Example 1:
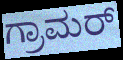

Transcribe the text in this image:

ಗ್ರಾಮರ್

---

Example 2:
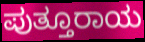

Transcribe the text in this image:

ಪುತ್ತೂರಾಯ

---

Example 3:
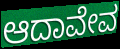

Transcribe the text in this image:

ಆದಾವೇವ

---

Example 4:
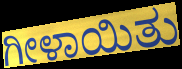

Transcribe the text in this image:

ಗೀಳಾಯಿತು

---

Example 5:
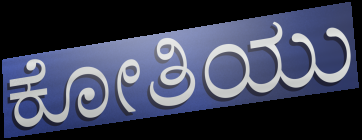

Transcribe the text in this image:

ಕೋತಿಯು